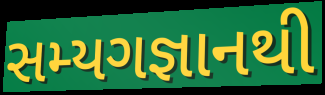
સમ્યગજ્ઞાનથી